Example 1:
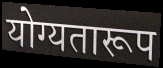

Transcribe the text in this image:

योग्यतारूप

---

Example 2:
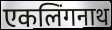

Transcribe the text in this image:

एकलिंगनाथ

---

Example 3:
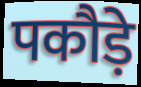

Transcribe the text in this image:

पकौड़े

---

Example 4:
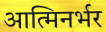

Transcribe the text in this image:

आत्मिनर्भर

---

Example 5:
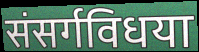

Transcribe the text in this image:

संसर्गविधया